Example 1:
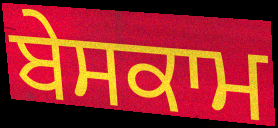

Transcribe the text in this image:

ਬੇਸਕਾਮ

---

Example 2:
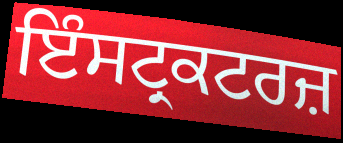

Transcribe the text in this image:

ਇੰਸਟ੍ਰਕਟਰਜ਼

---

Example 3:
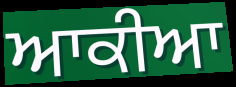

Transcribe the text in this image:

ਆਕੀਆ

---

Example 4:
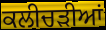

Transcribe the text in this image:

ਕਲੀਚੜੀਆਂ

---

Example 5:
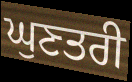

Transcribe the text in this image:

ਘੁਣਤਰੀ